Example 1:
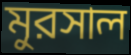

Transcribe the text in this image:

মুরসাল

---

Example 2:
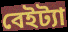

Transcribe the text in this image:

বেইট্যা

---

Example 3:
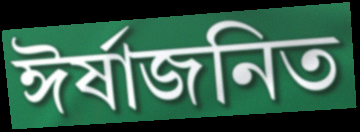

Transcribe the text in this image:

ঈর্ষাজনিত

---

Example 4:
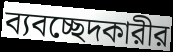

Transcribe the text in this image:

ব্যবচ্ছেদকারীর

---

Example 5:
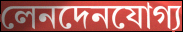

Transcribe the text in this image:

লেনদেনযোগ্য